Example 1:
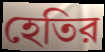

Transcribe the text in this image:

হেতির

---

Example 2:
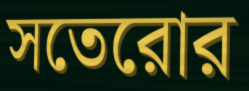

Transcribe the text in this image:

সতেরোর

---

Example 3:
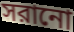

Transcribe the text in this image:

সরানো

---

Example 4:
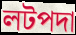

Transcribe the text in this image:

লটপদা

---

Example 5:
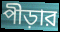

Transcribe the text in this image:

পীড়ার